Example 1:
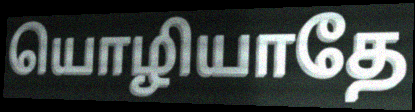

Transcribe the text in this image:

யொழியாதே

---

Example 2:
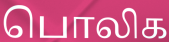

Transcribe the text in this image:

பொலிக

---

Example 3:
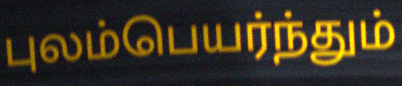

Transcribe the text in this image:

புலம்பெயர்ந்தும்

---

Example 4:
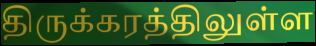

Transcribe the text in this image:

திருக்கரத்திலுள்ள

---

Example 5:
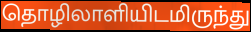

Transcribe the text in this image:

தொழிலாளியிடமிருந்து